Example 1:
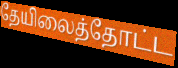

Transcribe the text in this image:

தேயிலைத்தோட்ட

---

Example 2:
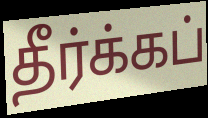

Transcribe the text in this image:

தீர்க்கப்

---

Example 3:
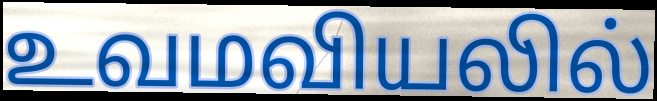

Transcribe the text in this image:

உவமவியலில்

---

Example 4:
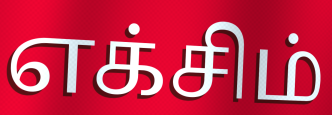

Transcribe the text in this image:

எக்சிம்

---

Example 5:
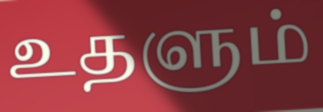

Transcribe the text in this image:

உதளும்